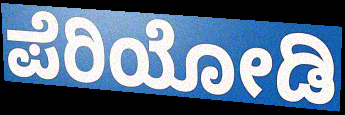
ಪೆರಿಯೋಡಿ